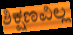
ಶಿಕ್ಷಣವಿಲ್ಲ